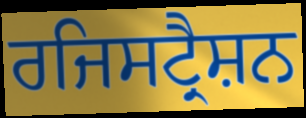
ਰਜਿਸਟ੍ਰੈਸ਼ਨ